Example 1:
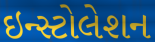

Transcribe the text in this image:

ઇન્સ્ટોલેશન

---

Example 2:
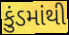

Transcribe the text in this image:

કુંડમાંથી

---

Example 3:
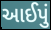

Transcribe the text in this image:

આઈપું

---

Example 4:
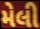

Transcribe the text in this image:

મેલી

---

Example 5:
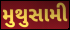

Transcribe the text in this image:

મુથુસામી